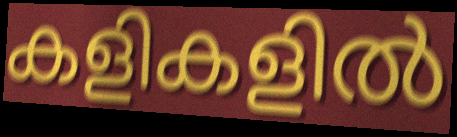
കളികളിൽ